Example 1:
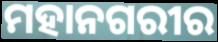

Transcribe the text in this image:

ମହାନଗରୀର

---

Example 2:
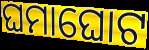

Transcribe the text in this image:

ଘମାଘୋଟ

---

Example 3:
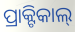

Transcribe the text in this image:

ପ୍ରାକ୍ଟିକାଲ୍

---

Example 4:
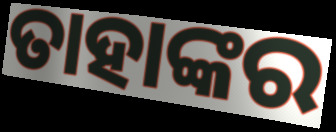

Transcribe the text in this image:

ତାହାଙ୍କର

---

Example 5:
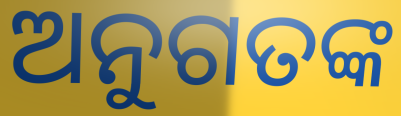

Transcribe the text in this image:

ଅନୁଗତଙ୍କ